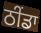
ਠੀਂਡਾ